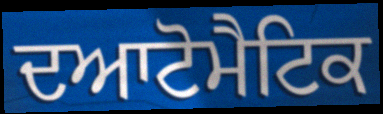
ਦਆਟੋਮੈਟਿਕ